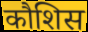
कौशिस